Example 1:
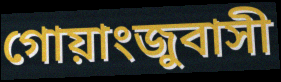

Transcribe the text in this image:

গোয়াংজুবাসী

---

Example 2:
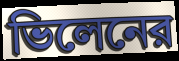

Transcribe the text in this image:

ভিলেনের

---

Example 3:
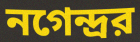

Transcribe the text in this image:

নগেন্দ্রর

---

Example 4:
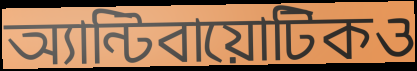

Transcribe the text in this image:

অ্যান্টিবায়োটিকও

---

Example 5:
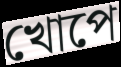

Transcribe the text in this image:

খোপে